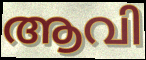
ആവി